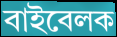
বাইবেলক